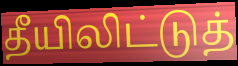
தீயிலிட்டுத்